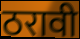
ठरावी